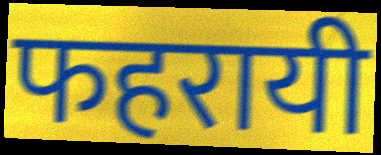
फहरायी